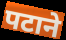
पटाने